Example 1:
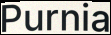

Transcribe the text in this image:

Purnia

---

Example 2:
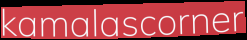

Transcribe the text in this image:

kamalascorner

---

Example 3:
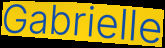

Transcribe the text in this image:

Gabrielle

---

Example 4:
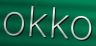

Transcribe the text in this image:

okko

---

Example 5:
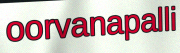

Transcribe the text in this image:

oorvanapalli